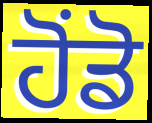
ਹੋਂਡੋ